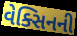
વેક્સિનની